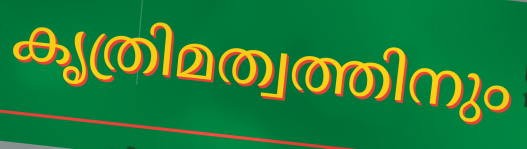
കൃത്രിമത്വത്തിനും